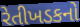
રેતીખડકનો